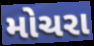
મોચરા